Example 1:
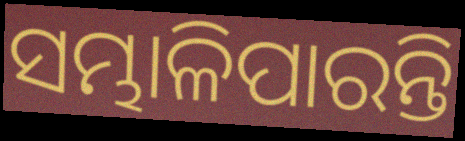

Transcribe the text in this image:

ସମ୍ଭାଳିପାରନ୍ତି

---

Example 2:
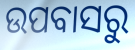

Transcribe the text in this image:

ଉପବାସରୁ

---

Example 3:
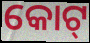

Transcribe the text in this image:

କୋଟ୍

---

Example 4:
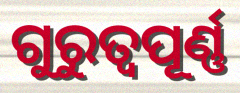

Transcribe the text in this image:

ଗୁରୁତ୍ବପୂର୍ଣ୍ଣ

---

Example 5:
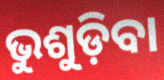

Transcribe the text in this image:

ଭୁଶୁଡ଼ିବା